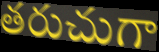
తరుచుగా